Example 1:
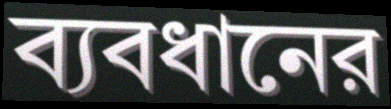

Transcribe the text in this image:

ব্যবধানের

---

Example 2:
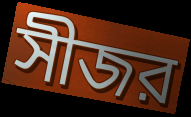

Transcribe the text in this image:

সীজর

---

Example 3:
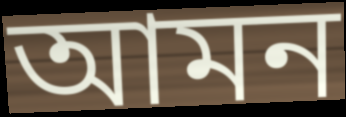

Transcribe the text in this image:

আমন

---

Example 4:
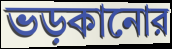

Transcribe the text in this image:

ভড়কানোর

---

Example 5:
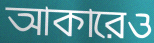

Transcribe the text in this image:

আকারেও